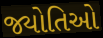
જ્યોતિઓ